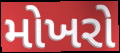
મોખરો